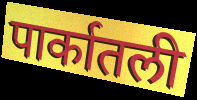
पार्कातली